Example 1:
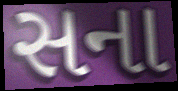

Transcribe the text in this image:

સના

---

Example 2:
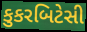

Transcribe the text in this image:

કુકરબિટેસી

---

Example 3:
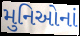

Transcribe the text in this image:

મુનિઓનાં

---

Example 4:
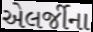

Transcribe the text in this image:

એલર્જીના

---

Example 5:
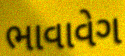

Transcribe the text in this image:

ભાવાવેગ